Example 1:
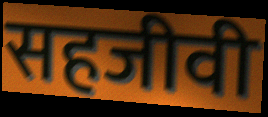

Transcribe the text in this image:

सहजीवी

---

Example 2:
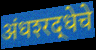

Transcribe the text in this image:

अंधश्रद्धेचे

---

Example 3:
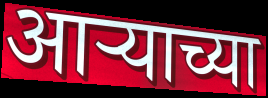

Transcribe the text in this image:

आऱ्याच्या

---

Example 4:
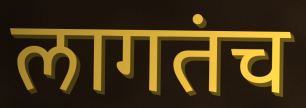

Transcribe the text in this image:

लागतंच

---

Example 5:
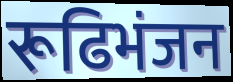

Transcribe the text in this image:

रूढिभंजन